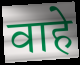
वाहे